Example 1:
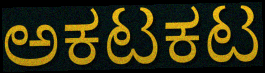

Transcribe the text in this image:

ಅಕಟಕಟ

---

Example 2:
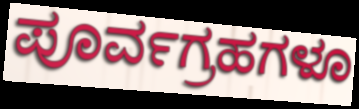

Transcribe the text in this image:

ಪೂರ್ವಗ್ರಹಗಳೂ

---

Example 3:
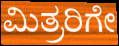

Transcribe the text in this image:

ಮಿತ್ರರಿಗೇ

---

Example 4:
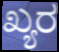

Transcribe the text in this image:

ಖ್ಯರ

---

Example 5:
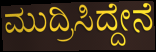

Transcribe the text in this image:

ಮುದ್ರಿಸಿದ್ದೇನೆ